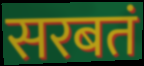
सरबतं